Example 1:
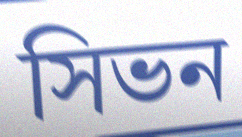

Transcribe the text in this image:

সিভন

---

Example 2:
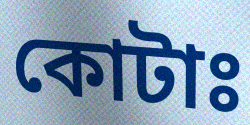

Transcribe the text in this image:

কোটাঃ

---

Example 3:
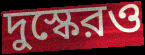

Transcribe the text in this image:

দুস্কেরও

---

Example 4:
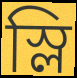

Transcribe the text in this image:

স্লি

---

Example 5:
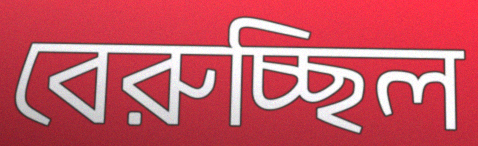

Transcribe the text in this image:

বেরুচ্ছিল